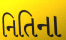
નિતિના